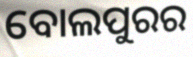
ବୋଲପୁରର